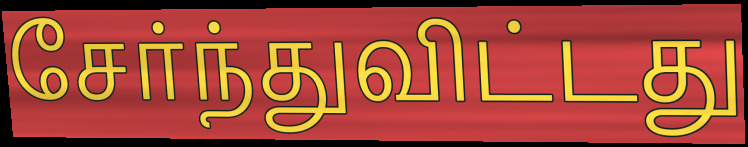
சேர்ந்துவிட்டது